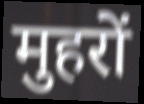
मुहरों